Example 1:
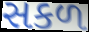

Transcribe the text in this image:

સકળ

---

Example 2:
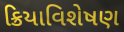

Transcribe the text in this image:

ક્રિયાવિશેષણ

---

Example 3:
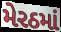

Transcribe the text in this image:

મેરઠમાં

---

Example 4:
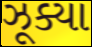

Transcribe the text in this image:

ઝૂક્યા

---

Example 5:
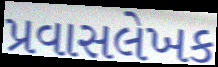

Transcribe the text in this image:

પ્રવાસલેખક